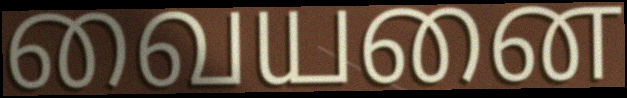
வையனை